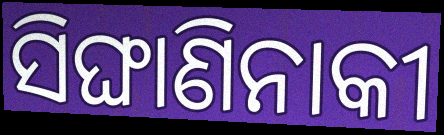
ସିଙ୍ଘାଣିନାକୀ